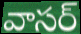
వాసర్